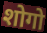
शोगो